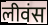
लीवंस